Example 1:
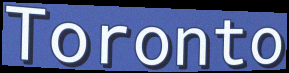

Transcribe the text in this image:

Toronto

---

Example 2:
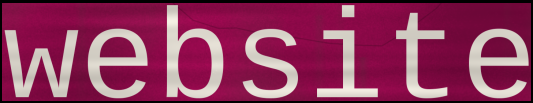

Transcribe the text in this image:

website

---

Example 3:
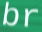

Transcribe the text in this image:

br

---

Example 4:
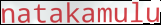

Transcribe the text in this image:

natakamulu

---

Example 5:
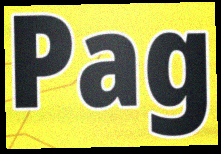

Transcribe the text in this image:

Pag